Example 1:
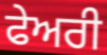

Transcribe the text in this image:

ਫੇਅਰੀ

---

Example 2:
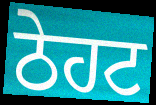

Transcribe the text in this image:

ਠੇਹਟ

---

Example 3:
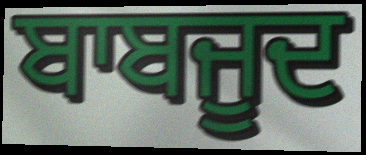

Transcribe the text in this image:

ਬਾਬਜੂਦ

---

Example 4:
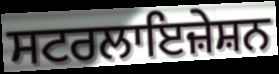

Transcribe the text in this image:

ਸਟਰਲਾਇਜ਼ੇਸ਼ਨ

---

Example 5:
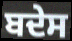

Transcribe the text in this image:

ਬਦੇਸ